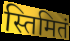
स्तिमितं